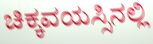
ಚಿಕ್ಕವಯಸ್ಸಿನಲ್ಲಿ